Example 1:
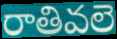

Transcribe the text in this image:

రాతివలె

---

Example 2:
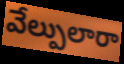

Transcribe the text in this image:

వేల్పులారా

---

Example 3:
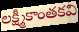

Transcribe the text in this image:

లక్ష్మీకాంతకవి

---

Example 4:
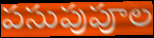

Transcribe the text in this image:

పసుపుపూల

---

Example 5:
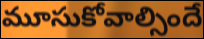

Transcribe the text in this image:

మూసుకోవాల్సిందే